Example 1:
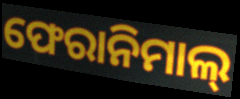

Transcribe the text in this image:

ଫେରାନିମାଲ୍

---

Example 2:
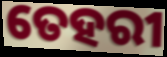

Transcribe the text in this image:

ତେହରୀ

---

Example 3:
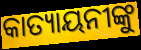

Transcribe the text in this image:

କାତ୍ୟାୟନୀଙ୍କୁ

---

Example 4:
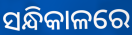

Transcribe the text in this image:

ସନ୍ଧିକାଳରେ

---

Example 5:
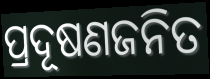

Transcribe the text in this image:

ପ୍ରଦୂଷଣଜନିତ